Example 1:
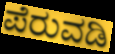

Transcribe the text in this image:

ಪೆರುವಡಿ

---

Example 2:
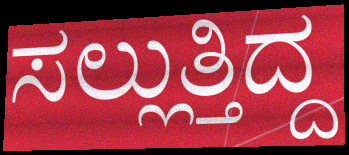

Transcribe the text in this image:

ಸಲ್ಲುತ್ತಿದ್ದ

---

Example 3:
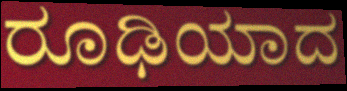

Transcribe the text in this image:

ರೂಢಿಯಾದ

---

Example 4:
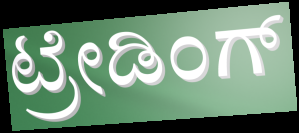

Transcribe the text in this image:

ಟ್ರೇಡಿಂಗ್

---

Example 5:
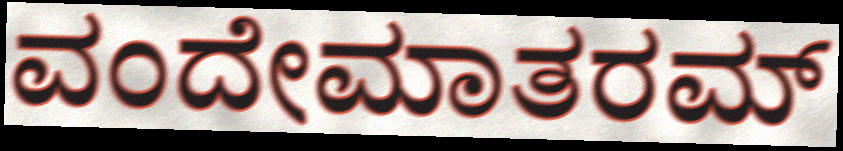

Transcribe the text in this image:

ವಂದೇಮಾತರಮ್